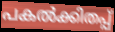
പകൽക്കിതപ്പ്